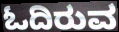
ಓದಿರುವ